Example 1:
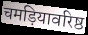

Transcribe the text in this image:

चमड़ियावरिष्ठ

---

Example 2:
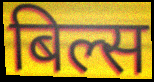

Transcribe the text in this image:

बिल्स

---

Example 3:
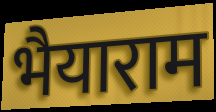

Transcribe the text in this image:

भैयाराम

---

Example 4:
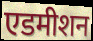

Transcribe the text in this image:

एडमीशन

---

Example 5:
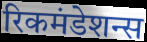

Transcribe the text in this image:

रिकमंडेशन्स